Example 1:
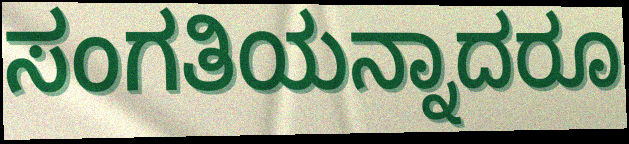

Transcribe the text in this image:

ಸಂಗತಿಯನ್ನಾದರೂ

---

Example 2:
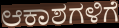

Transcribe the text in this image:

ಆಕಾಶಗಳಿಗೆ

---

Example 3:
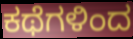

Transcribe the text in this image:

ಕಥೆಗಳಿಂದ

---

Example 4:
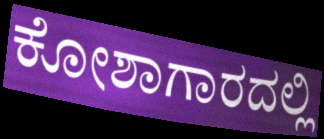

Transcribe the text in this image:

ಕೋಶಾಗಾರದಲ್ಲಿ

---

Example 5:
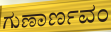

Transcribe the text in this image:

ಗುಣಾರ್ಣವಂ